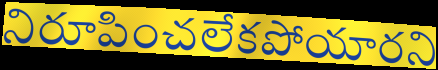
నిరూపించలేకపోయారని